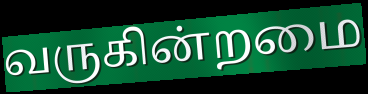
வருகின்றமை